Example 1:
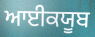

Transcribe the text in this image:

ਆਈਕਯੂਬ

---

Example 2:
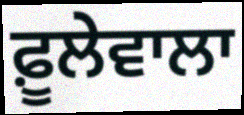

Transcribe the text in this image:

ਫ਼ੂਲੇਵਾਲਾ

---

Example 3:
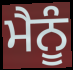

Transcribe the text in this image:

ਮੈਨੂੰ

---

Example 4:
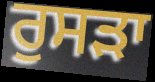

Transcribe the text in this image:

ਰੁਸੜਾ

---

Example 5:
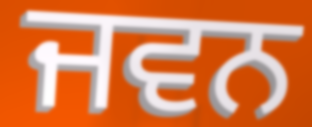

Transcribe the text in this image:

ਜਵਨ